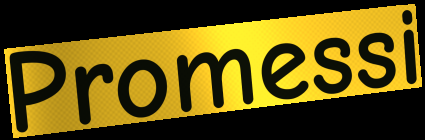
Promessi